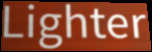
Lighter